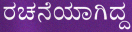
ರಚನೆಯಾಗಿದ್ದ